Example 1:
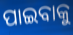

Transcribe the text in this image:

ପାଇବାକୁ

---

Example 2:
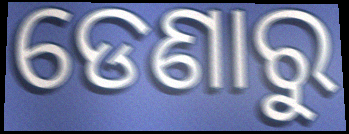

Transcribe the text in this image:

ଡେଣାରୁ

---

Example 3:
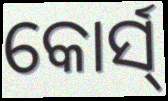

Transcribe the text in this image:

କୋର୍ସ୍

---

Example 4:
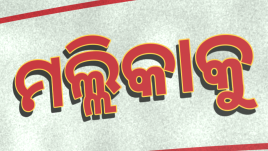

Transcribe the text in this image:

ମଲ୍ଲିକାକୁ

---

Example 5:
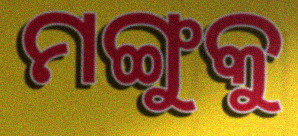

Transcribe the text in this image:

ମଙ୍ଗୁକୁ